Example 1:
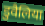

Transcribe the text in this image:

डुवैलिया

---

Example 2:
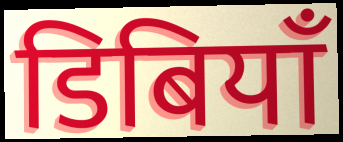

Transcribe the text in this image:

डिबियाँ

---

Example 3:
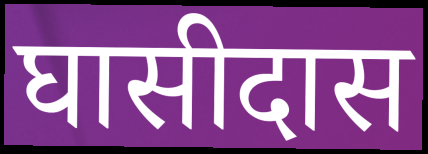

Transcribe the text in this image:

घासीदास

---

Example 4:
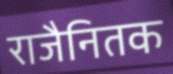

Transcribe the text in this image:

राजैनितक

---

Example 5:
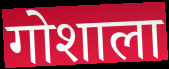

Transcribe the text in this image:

गोशाला